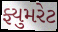
ફ્યુમરેટ